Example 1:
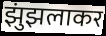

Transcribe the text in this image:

झुंझलाकर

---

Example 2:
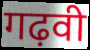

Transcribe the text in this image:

गढ़वी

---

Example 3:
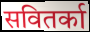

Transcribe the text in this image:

सवितर्का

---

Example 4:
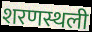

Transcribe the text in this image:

शरणस्थली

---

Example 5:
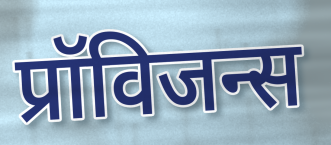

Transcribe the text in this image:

प्रॉविजन्स